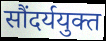
सौंदर्ययुक्त